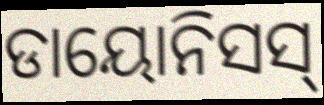
ଡାୟୋନିସସ୍